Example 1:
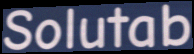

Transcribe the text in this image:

Solutab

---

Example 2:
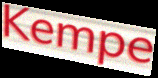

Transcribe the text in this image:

Kempe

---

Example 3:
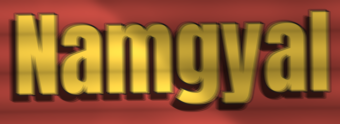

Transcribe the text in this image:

Namgyal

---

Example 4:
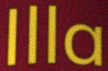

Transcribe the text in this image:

Illa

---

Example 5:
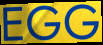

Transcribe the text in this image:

EGG